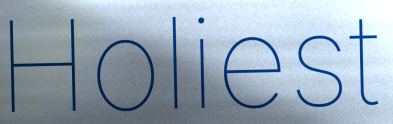
Holiest